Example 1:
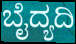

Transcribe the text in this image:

ಬೈದ್ಯದಿ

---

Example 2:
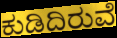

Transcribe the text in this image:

ಕುಡಿದಿರುವೆ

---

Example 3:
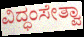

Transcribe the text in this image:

ವಿದ್ಧಂಸೇತ್ವಾ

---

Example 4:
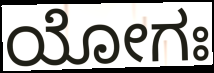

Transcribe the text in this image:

ಯೋಗಃ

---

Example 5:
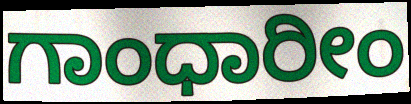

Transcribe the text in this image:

ಗಾಂಧಾರೀಂ